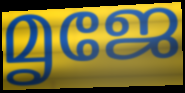
മൃജേ